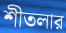
শীতলার